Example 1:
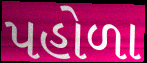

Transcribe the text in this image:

પહોળા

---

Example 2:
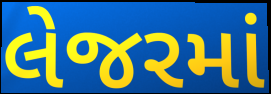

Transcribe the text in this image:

લેજરમાં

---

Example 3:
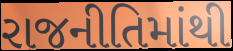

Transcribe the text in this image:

રાજનીતિમાંથી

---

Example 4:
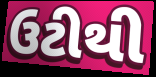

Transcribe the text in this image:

ઉટીથી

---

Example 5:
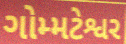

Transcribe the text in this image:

ગોમ્મટેશ્વર